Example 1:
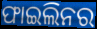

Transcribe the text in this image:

ଫାଇଲିନର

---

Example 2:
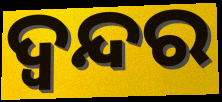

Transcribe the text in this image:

ଦ୍ବନ୍ଦର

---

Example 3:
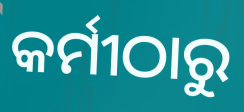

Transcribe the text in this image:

କର୍ମୀଠାରୁ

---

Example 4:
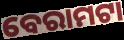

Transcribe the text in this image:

ବେରାମଟା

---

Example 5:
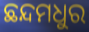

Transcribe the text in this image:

ଛନ୍ଦମଧୁର